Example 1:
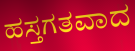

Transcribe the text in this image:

ಹಸ್ತಗತವಾದ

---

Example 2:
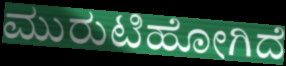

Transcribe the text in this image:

ಮುರುಟಿಹೋಗಿದೆ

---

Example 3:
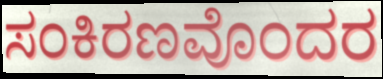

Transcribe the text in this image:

ಸಂಕಿರಣವೊಂದರ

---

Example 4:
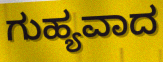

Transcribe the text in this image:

ಗುಹ್ಯವಾದ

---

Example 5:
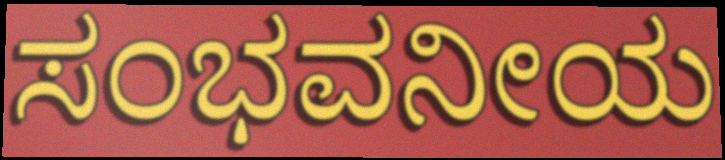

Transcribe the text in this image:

ಸಂಭವನೀಯ